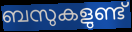
ബസുകളുണ്ട്